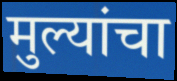
मुल्यांचा